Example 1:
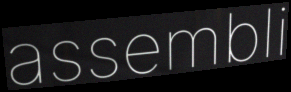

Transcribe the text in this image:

assembli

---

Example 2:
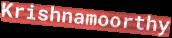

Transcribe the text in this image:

Krishnamoorthy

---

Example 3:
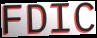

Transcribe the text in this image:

FDIC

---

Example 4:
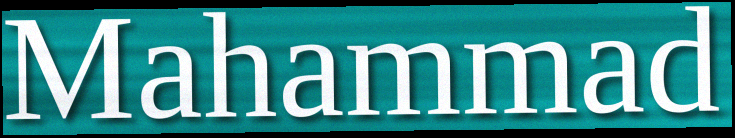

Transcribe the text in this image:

Mahammad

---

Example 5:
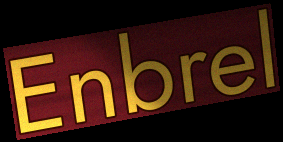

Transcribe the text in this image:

Enbrel